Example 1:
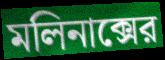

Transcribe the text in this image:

মলিনাক্সের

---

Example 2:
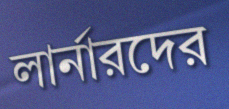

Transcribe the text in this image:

লার্নারদের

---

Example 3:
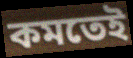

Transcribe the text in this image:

কমতেই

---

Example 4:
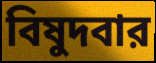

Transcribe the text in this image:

বিষুদবার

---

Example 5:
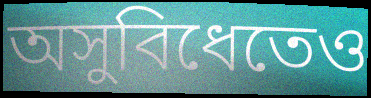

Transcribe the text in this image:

অসুবিধেতেও